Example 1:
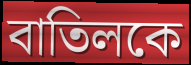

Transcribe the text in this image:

বাতিলকে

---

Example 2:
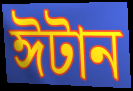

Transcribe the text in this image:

ঈটান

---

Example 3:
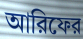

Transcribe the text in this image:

আরিফের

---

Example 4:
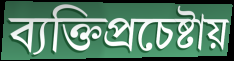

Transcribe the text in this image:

ব্যক্তিপ্রচেষ্টায়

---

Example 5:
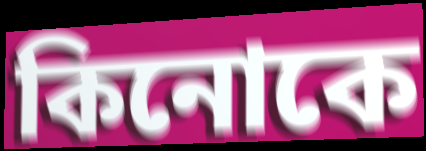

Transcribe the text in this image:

কিনোকে